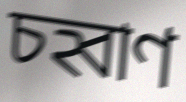
চহ্বাণ